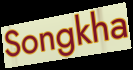
Songkha